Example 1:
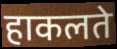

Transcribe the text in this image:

हाकलते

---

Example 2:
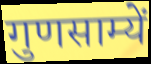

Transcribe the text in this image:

गुणसाम्यें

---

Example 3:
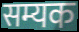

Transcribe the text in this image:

सम्‍यक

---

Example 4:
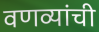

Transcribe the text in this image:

वणव्यांची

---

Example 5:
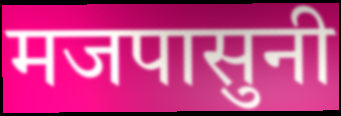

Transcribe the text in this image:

मजपासुनी